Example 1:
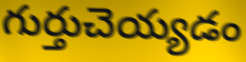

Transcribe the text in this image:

గుర్తుచెయ్యడం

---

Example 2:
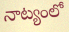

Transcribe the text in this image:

నాట్యంలో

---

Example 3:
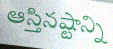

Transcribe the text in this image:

ఆస్తినష్టాన్ని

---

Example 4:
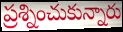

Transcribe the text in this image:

ప్రశ్నించుకున్నారు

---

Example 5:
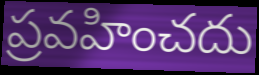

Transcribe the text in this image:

ప్రవహించదు